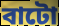
বাটো